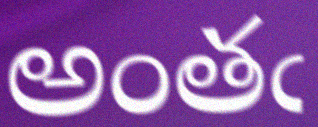
అంతఁ